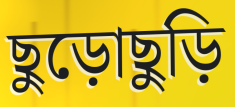
ছুড়োছুড়ি